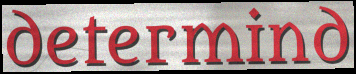
determind